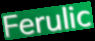
Ferulic